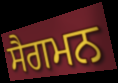
ਸੈਗਮਨ